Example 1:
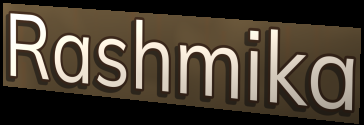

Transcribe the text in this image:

Rashmika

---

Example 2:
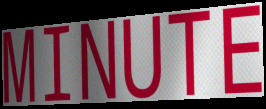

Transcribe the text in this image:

MINUTE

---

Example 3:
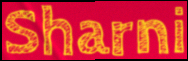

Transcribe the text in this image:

Sharni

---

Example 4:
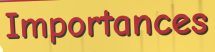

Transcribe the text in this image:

Importances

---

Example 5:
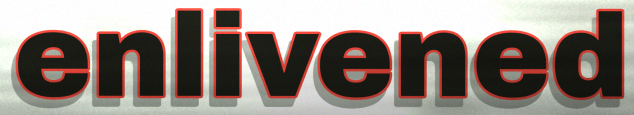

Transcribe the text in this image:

enlivened